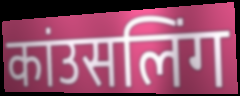
कांउसलिंग